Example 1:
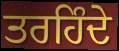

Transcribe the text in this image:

ਤਰਹਿੰਦੇ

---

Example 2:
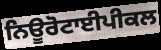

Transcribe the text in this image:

ਨਿਊਰੋਟਾਈਪੀਕਲ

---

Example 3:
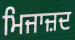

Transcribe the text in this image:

ਮਿਜਾਜ਼ਦ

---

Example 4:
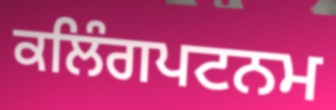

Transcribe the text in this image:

ਕਲਿੰਗਪਟਨਮ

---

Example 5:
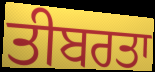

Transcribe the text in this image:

ਤੀਬਰਤਾ